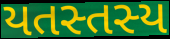
યતસ્તસ્ય